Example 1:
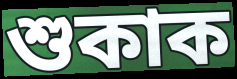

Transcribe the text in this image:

শুকাক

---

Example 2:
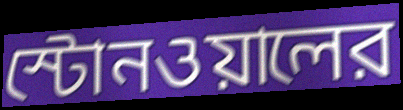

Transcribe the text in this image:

স্টোনওয়ালের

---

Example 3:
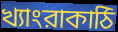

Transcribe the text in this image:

খ্যাংরাকাঠি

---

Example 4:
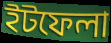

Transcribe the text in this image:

ইটফেলা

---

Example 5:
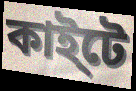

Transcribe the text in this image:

কাই্টে